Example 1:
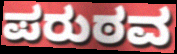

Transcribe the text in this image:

ಪರುಠವ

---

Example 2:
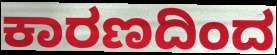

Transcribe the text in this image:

ಕಾರಣದಿಂದ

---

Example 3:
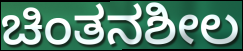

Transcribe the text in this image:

ಚಿಂತನಶೀಲ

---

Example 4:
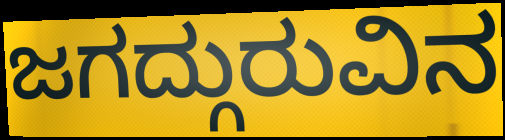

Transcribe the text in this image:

ಜಗದ್ಗುರುವಿನ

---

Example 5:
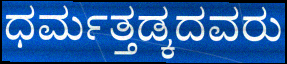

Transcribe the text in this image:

ಧರ್ಮತ್ತಡ್ಕದವರು